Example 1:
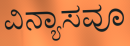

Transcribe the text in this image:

ವಿನ್ಯಾಸವೂ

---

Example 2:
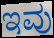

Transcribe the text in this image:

ಇವು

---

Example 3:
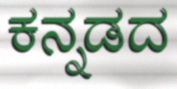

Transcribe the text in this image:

ಕನ್ನಡದ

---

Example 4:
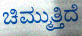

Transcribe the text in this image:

ಚಿಮ್ಮುತ್ತಿದೆ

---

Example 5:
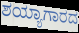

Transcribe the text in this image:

ಶಯ್ಯಾಗಾರದ